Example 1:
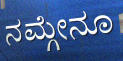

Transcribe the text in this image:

ನಮ್ಗೇನೂ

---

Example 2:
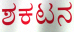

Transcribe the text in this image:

ಶಕಟನ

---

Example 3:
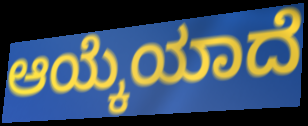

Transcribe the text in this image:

ಆಯ್ಕೆಯಾದೆ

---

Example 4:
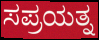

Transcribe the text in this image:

ಸಪ್ರಯತ್ನ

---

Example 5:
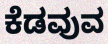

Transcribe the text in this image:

ಕೆಡವುವ